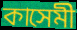
কাসেমী